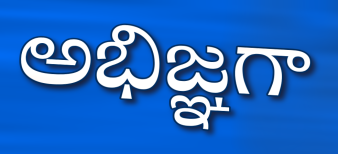
అభిజ్ఞగా